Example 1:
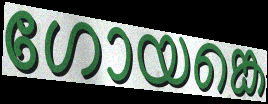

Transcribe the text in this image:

ഗോയങ്കെ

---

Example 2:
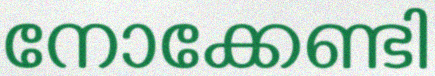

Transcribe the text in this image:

നോക്കേണ്ടി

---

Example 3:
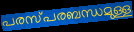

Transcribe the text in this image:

പരസ്പരബന്ധമുള്ള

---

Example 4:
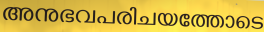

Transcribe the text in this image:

അനുഭവപരിചയത്തോടെ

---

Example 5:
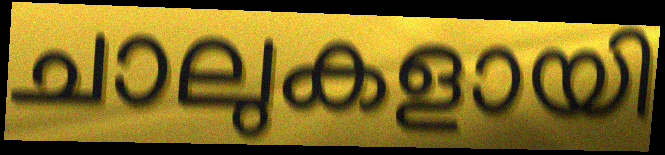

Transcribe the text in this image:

ചാലുകളായി